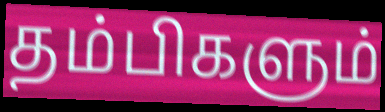
தம்பிகளும்